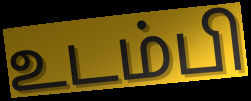
உடம்பி